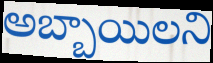
అబ్బాయిలని